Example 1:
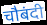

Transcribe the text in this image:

चौबंदी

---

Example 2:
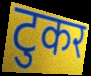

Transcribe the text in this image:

टुकर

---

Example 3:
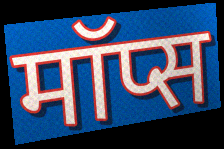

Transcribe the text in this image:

मॉप्स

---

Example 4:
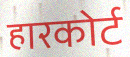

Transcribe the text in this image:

हारकोर्ट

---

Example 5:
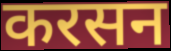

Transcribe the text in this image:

करसन